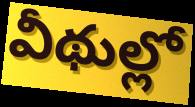
వీథుల్లో